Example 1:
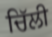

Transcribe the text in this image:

ਚਿੱਲੀ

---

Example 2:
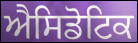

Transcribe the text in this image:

ਐਸਿਡੋਟਿਕ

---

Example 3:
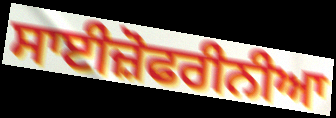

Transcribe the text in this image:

ਸਾਈਜ਼ੋਫਰੀਨੀਆ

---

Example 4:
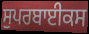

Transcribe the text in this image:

ਸੁਪਰਬਾਈਕਸ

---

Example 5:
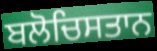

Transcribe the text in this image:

ਬਲੋਚਿਸਤਾਨ